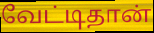
வேட்டிதான்